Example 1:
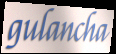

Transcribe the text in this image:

gulancha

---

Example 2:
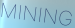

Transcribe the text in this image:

MINING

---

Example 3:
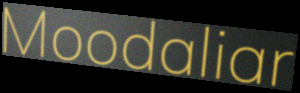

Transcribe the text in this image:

Moodaliar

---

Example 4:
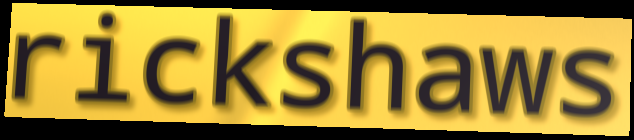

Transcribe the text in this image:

rickshaws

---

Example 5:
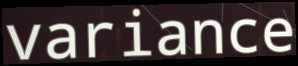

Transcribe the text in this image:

variance